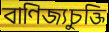
বাণিজ্যচুক্তি